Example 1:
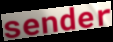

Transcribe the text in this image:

sender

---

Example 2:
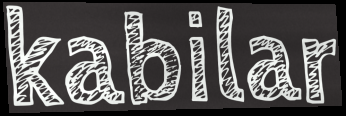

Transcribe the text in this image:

kabilar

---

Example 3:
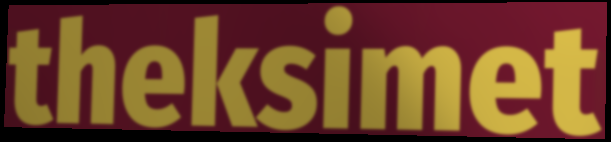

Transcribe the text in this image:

theksimet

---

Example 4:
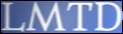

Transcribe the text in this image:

LMTD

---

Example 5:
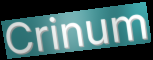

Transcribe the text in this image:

Crinum